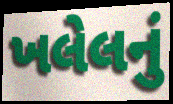
ખલેલનું